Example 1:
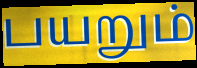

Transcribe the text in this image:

பயறும்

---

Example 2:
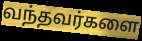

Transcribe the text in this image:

வந்தவர்களை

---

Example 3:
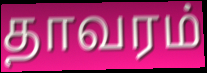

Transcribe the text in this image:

தாவரம்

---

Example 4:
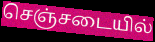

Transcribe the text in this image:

செஞ்சடையில்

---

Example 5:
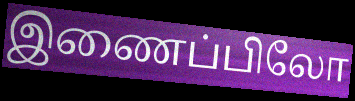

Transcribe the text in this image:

இணைப்பிலோ